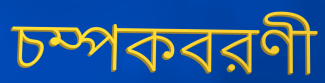
চম্পকবরণী